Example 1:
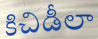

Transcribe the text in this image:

కిచిడీలా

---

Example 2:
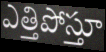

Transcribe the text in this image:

ఎత్తిపోస్తూ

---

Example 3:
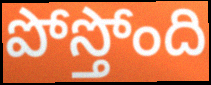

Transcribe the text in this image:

పోస్తోంది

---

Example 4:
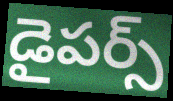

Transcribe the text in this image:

డైపర్స్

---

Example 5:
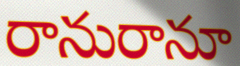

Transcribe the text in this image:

రానురానూ